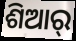
ଶିଆର୍